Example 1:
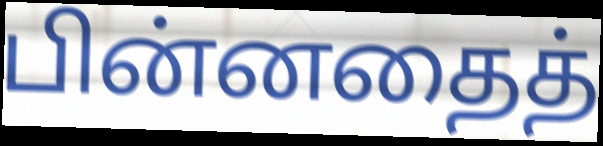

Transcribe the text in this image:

பின்னதைத்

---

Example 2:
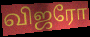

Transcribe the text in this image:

விஜரோ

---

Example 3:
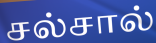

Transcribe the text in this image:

சல்சால்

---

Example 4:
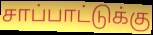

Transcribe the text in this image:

சாப்பாட்டுக்கு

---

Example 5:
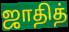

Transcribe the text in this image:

ஜாதித்